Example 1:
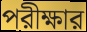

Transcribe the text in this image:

পরীক্ষার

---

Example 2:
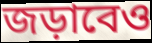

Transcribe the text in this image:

জড়াবেও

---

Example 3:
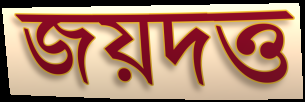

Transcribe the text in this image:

জয়দত্ত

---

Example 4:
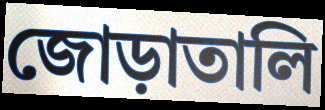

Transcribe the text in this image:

জোড়াতালি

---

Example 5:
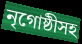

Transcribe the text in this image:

নৃগোষ্ঠীসহ